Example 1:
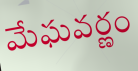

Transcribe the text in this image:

మేఘవర్ణం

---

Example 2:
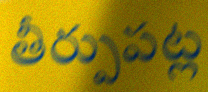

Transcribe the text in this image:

తీర్పుపట్ల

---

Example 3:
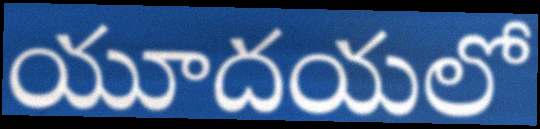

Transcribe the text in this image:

యూదయలో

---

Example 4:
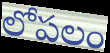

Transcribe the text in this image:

లోపలం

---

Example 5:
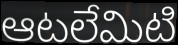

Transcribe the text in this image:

ఆటలేమిటి